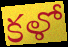
కళో